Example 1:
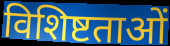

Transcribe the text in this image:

विशिष्टताओं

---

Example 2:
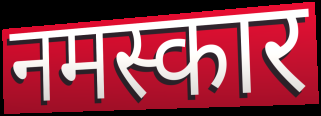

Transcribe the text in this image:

नमस्कार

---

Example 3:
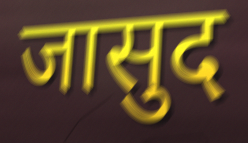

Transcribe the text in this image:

जासुद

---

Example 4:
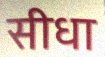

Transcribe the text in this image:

सीधा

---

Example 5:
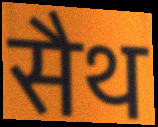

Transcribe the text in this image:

सैथ